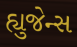
હ્યુજેન્સ